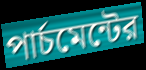
পার্চমেন্টের